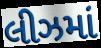
લીઝમાં